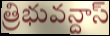
త్రిభువన్దాస్